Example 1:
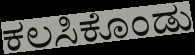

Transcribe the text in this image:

ಕಲಸಿಕೊಂಡು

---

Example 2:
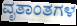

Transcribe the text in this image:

ವೃತಾಂತಗಳ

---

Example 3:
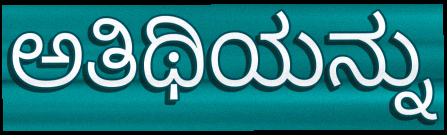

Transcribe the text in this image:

ಅತಿಥಿಯನ್ನು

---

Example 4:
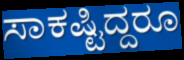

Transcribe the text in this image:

ಸಾಕಷ್ಟಿದ್ದರೂ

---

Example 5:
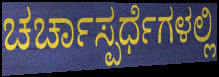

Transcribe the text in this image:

ಚರ್ಚಾಸ್ಪರ್ಧೆಗಳಲ್ಲಿ